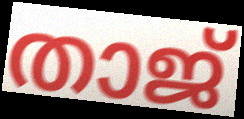
താജ്